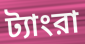
ট্যাংরা